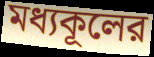
মধ্যকূলের